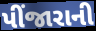
પીંજારાની